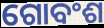
ଗୋବଂଶ